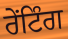
ਰੇਂਟਿੰਗ